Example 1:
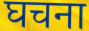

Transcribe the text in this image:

घचना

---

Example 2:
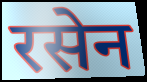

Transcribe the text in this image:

रसेन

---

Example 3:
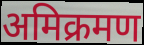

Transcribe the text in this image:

अमिक्रमण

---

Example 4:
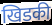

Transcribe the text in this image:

खिडकी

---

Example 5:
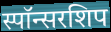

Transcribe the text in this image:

स्पॉन्सरशिप